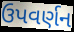
ઉપવર્ણન